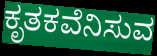
ಕೃತಕವೆನಿಸುವ